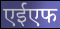
एईएफ